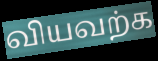
வியவற்க